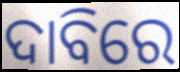
ଦାବିରେ